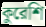
কুরেশি